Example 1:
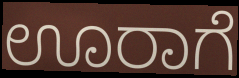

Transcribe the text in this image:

ಊರಾಗೆ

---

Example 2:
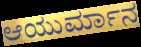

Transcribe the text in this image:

ಆಯುರ್ಮಾನ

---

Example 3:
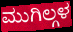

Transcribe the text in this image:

ಮುಗಿಲ್ಗಳ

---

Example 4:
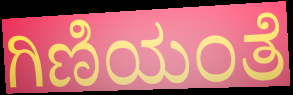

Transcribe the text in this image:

ಗಿಣಿಯಂತೆ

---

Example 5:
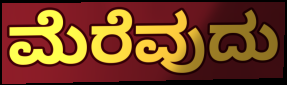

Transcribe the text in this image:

ಮೆರೆವುದು